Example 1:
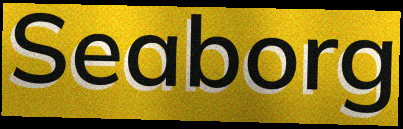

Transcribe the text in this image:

Seaborg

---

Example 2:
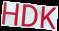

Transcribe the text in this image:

HDK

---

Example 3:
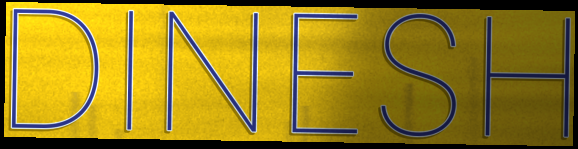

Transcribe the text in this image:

DINESH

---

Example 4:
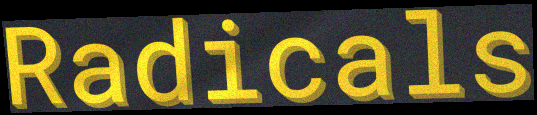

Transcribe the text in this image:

Radicals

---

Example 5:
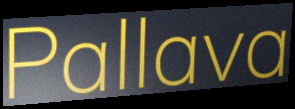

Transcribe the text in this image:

Pallava